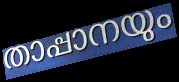
താപ്പാനയും